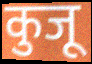
कुजू